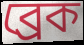
ব্রেক